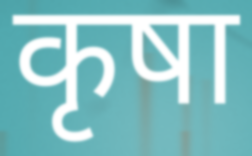
कृषा